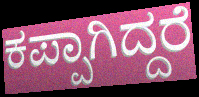
ಕಪ್ಪಾಗಿದ್ದರೆ